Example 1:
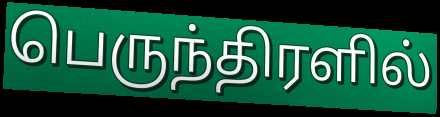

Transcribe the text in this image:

பெருந்திரளில்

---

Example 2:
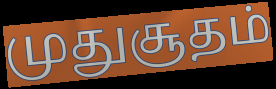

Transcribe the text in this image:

முதுசூதம்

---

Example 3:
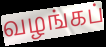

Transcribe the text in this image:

வழங்கப்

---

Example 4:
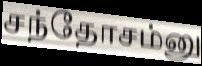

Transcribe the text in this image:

சந்தோசம்னு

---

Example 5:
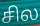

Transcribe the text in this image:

சில